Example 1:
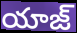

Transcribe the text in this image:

యాజ్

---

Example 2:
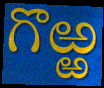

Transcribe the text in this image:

గొఱ్ఱ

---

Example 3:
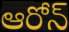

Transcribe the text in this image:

ఆరోన్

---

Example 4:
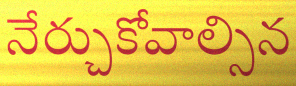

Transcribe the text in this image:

నేర్చుకోవాల్సిన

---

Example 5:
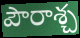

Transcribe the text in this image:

పౌరాశ్చ